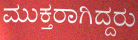
ಮುಕ್ತರಾಗಿದ್ದರು